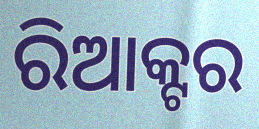
ରିଆକ୍ଟର